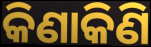
କିଣାକିଣି